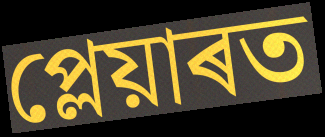
প্লেয়াৰত